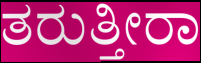
ತರುತ್ತೀರಾ